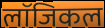
लॉजिकल